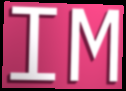
IM